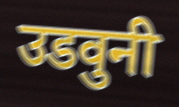
उडवुनी